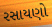
રસાયણો